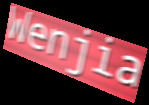
Wenjia